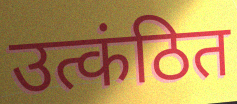
उत्कंठित